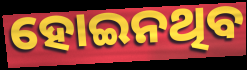
ହୋଇନଥିବ